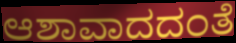
ಆಶಾವಾದದಂತೆ